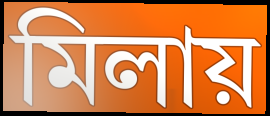
মিলায়